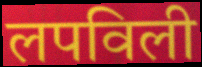
लपविली